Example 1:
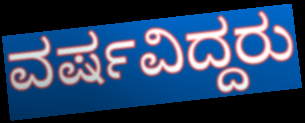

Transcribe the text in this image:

ವರ್ಷವಿದ್ದರು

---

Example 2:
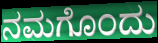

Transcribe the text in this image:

ನಮಗೊಂದು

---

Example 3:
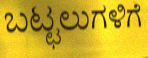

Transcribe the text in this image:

ಬಟ್ಟಲುಗಳಿಗೆ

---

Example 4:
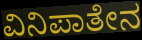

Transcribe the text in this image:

ವಿನಿಪಾತೇನ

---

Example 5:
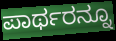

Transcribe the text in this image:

ಪಾರ್ಥರನ್ನೂ